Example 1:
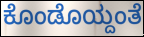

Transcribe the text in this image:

ಕೊಂಡೊಯ್ದಂತೆ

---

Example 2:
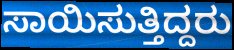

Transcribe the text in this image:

ಸಾಯಿಸುತ್ತಿದ್ದರು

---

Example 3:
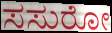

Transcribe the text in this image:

ಸಸುರೋ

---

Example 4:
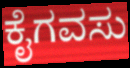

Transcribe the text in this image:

ಕೈಗವಸು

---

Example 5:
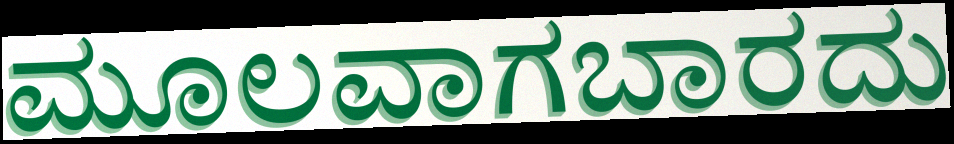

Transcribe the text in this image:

ಮೂಲವಾಗಬಾರದು